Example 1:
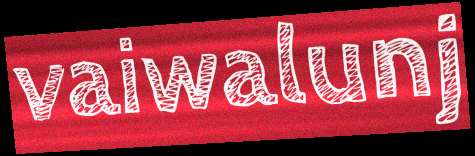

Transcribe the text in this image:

vaiwalunj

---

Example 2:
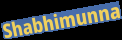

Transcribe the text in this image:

Shabhimunna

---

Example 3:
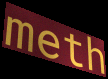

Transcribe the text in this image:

meth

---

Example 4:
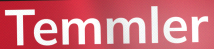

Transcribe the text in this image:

Temmler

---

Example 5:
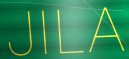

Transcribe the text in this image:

JILA